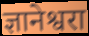
ज्ञानेश्वरा